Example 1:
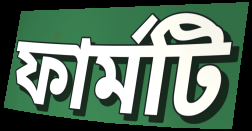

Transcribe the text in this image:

ফার্মটি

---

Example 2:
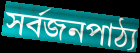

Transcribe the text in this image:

সর্বজনপাঠ্য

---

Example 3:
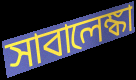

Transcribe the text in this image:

সাবালেঙ্কা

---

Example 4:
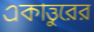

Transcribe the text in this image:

একাত্তুরের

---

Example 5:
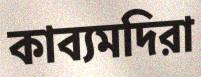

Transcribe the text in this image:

কাব্যমদিরা